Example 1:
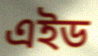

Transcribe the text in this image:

এইড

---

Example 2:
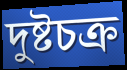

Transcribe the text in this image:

দুষ্টচক্র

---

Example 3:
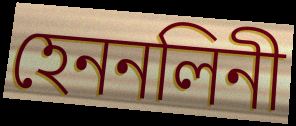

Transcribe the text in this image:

হেননলিনী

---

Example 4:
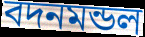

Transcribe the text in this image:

বদনমন্ডল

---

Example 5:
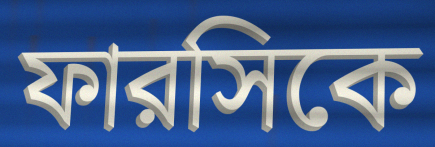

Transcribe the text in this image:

ফারসিকে